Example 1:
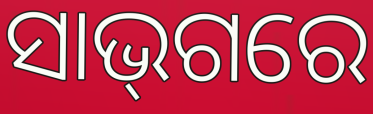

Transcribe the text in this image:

ସାଭ୍‌ଗରେ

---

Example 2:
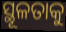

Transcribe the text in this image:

ସ୍ଥୂଳତାକୁ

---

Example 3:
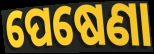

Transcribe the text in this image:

ପେଷେଣା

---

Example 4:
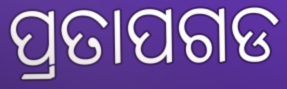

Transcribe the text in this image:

ପ୍ରତାପଗଡ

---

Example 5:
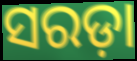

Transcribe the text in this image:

ସରଡ଼ା